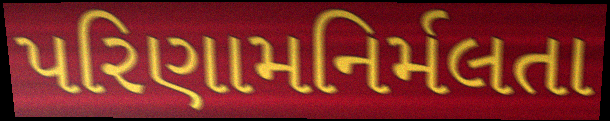
પરિણામનિર્મલતા